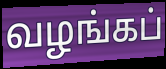
வழங்கப்